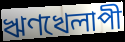
ঋণখেলাপী